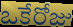
ఒకేరోజు